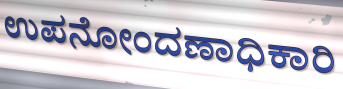
ಉಪನೋಂದಣಾಧಿಕಾರಿ